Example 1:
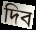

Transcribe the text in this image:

দিব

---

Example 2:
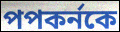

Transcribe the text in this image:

পপকর্নকে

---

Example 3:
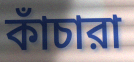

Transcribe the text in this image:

কাঁচারা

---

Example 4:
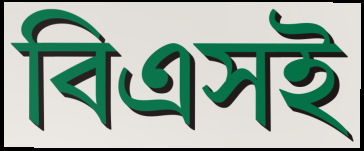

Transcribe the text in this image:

বিএসই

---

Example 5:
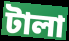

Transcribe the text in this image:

টালা